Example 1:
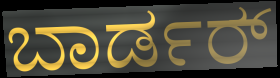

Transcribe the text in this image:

ಬಾರ್ಡರ್‍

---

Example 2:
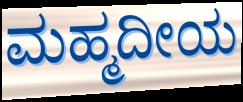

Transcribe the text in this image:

ಮಹ್ಮದೀಯ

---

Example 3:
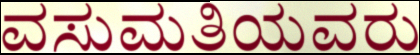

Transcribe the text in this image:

ವಸುಮತಿಯವರು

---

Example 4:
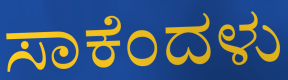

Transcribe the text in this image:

ಸಾಕೆಂದಳು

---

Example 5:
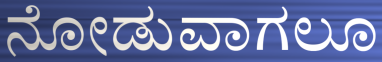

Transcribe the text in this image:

ನೋಡುವಾಗಲೂ